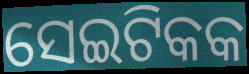
ସେଇଟିକକ